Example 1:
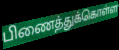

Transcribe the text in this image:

பிணைத்துக்கொள்ள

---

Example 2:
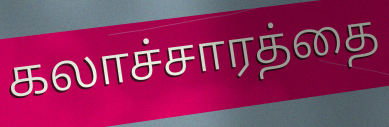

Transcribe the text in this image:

கலாச்சாரத்தை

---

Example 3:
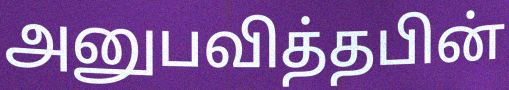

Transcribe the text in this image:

அனுபவித்தபின்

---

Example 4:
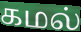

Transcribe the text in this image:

கமல்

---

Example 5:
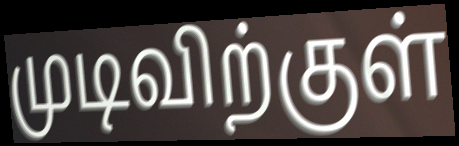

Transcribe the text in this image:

முடிவிற்குள்